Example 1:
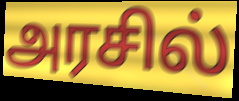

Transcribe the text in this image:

அரசில்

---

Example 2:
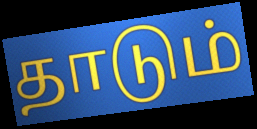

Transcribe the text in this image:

தாடும்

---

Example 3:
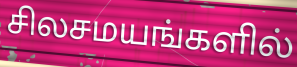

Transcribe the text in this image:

சிலசமயங்களில்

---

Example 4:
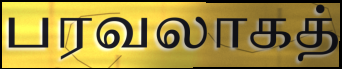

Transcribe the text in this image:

பரவலாகத்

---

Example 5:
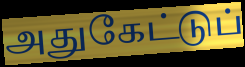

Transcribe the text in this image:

அதுகேட்டுப்